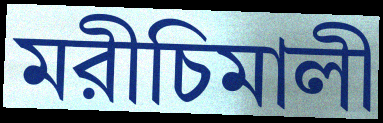
মরীচিমালী